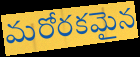
మరోరకమైన